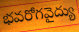
భవరోగవైద్యు